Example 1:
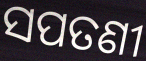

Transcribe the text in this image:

ସପତଣୀ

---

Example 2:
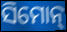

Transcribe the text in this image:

ସିମୋନ୍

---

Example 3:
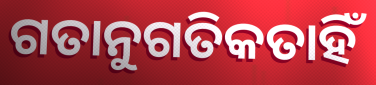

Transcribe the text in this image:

ଗତାନୁଗତିକତାହିଁ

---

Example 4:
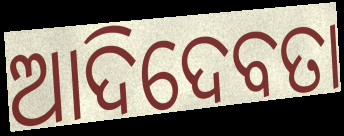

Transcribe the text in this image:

ଆଦିଦେବତା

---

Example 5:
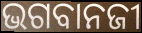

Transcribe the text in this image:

ଭଗବାନଜୀ